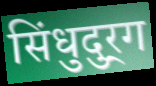
सिंधुदुर्ग